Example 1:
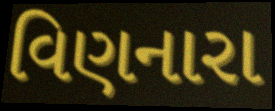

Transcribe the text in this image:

વિણનારા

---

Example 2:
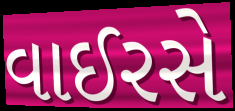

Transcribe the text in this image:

વાઈરસે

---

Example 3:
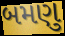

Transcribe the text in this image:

બમણુ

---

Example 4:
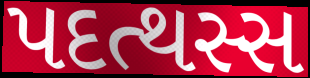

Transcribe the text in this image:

પદત્થસ્સ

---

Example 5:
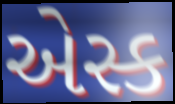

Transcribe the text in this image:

એસ્ક